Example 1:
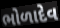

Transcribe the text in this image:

ભોળાદેવ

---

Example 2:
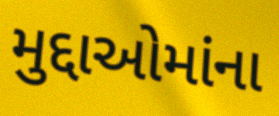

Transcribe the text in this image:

મુદ્દાઓમાંના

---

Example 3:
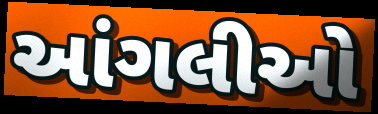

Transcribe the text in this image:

આંગલીઓ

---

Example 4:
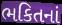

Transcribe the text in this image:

ભકિતનાં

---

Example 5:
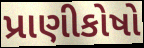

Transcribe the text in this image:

પ્રાણીકોષો